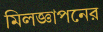
মিলজ্ঞাপনের